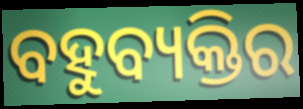
ବହୁବ୍ୟକ୍ତିର